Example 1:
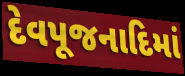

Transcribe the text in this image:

દેવપૂજનાદિમાં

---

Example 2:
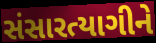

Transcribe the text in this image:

સંસારત્યાગીને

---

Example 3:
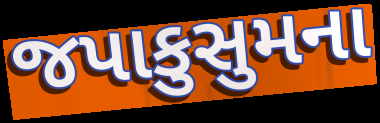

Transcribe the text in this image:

જપાકુસુમના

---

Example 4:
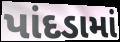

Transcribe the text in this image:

પાંદડામાં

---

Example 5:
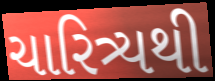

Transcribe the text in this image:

ચારિત્ર્યથી